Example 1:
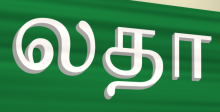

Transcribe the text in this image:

லதா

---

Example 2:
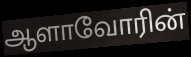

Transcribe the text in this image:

ஆளாவோரின்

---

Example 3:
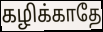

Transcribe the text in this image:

கழிக்காதே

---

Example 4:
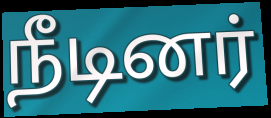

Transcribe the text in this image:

நீடினர்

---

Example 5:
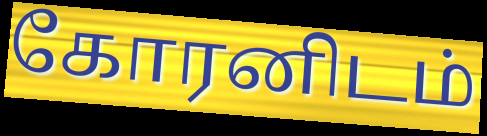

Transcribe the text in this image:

கோரனிடம்